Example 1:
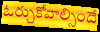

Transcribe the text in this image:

ఓర్చుకోవాల్సిందే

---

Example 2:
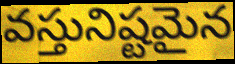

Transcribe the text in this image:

వస్తునిష్టమైన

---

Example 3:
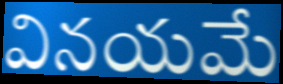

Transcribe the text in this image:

వినయమే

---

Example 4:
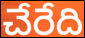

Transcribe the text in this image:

చేరేది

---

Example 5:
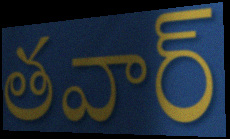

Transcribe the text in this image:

తవార్